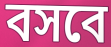
বসবে